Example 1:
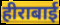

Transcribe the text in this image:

हीराबाई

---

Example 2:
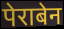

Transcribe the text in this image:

पेराबेन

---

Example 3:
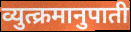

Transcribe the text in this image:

व्युत्क्रमानुपाती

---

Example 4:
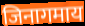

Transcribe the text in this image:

जिनागमाय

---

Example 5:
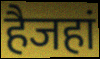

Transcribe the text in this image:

हैजहां